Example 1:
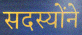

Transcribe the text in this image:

सदस्योंने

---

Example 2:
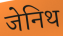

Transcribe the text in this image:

जेनिथ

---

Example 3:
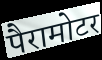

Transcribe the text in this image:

पैरामोटर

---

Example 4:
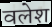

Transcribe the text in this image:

वलेश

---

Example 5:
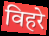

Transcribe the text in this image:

विहरे